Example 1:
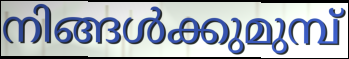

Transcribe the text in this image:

നിങ്ങൾക്കുമുമ്പ്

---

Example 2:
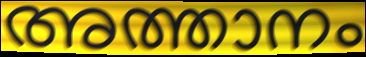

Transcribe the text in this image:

അത്താനം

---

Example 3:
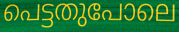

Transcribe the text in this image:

പെട്ടതുപോലെ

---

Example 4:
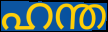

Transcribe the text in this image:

ഹന്ത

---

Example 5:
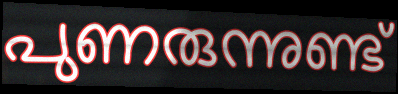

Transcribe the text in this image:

പുണരുന്നുണ്ട്